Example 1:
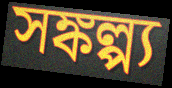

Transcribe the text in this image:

সঙ্কল্প্য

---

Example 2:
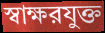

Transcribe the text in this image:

স্বাক্ষরযুক্ত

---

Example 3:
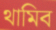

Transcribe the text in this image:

থামিব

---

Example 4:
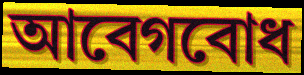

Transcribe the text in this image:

আবেগবোধ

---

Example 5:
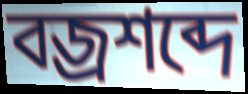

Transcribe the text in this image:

বজ্রশব্দে